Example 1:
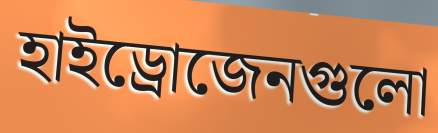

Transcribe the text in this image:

হাইড্রোজেনগুলো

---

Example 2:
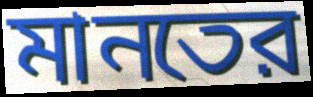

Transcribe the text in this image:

মানতের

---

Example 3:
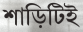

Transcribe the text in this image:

শাড়িটিই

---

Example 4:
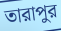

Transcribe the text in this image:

তারাপুর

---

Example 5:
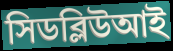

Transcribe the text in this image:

সিডব্লিউআই